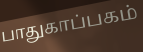
பாதுகாப்பகம்